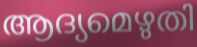
ആദ്യമെഴുതി